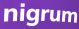
nigrum